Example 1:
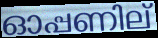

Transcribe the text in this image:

ഓപ്പണില്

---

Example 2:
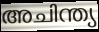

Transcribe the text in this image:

അചിന്ത്യ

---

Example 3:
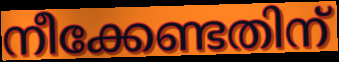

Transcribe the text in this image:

നീക്കേണ്ടതിന്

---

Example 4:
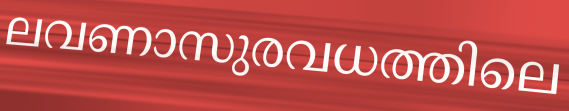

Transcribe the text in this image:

ലവണാസുരവധത്തിലെ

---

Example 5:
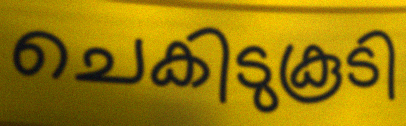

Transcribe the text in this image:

ചെകിടുകൂടി